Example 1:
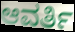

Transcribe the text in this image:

ಆವರ್ತಿ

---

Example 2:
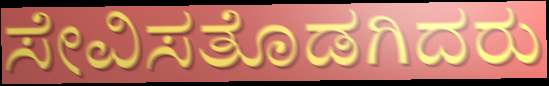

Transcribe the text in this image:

ಸೇವಿಸತೊಡಗಿದರು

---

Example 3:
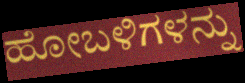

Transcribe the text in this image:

ಹೋಬಳಿಗಳನ್ನು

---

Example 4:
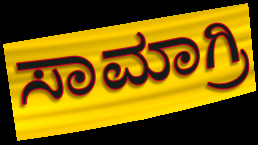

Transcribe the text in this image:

ಸಾಮಾಗ್ರಿ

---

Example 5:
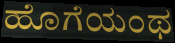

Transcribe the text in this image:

ಹೊಗೆಯಂಥ